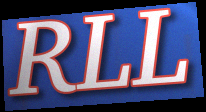
RLL